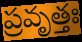
ప్రవృత్తః